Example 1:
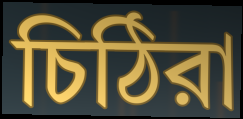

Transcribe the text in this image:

চিঠিরা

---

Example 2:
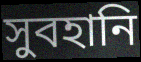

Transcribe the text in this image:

সুবহানি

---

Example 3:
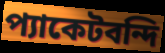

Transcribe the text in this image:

প্যাকেটবন্দি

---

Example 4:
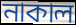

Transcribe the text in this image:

নাকাল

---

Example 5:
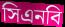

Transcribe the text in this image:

সিএনবি